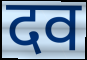
दव